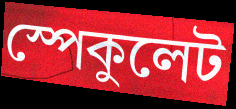
স্পেকুলেট